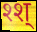
श्श्